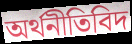
অৰ্থনীতিবিদ